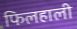
फिलहाली